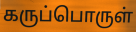
கருப்பொருள்